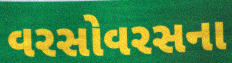
વરસોવરસના